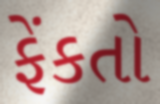
ફેંકતો